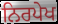
ਨਿਰਪੇਖ